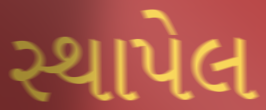
સ્થાપેલ